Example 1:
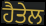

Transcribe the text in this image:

ਹੈਤੇਲ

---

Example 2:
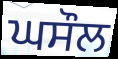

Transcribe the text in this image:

ਘਸੌਲ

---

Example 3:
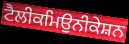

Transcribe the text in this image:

ਟੈਲੀਕਮਿਉਨੀਕੇਸ਼ਨ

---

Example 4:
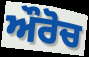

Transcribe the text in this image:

ਔਰੋਚ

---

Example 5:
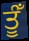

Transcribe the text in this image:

ਤੂੰਁ